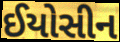
ઈયોસીન